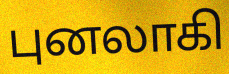
புனலாகி